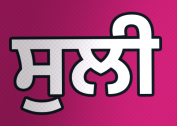
ਸੁਲੀ